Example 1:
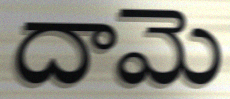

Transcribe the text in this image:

దామె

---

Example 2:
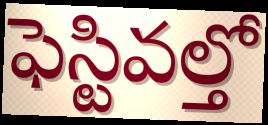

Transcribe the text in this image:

ఫెస్టివల్తో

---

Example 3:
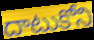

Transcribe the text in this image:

దాటుకోని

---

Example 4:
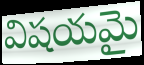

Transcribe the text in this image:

విషయమై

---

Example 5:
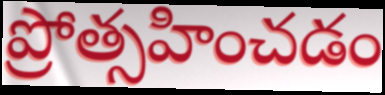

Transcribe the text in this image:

ప్రోత్సహించడం